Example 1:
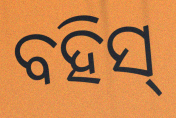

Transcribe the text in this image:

ବହିସ୍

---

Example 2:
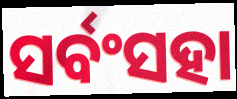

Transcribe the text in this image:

ସର୍ବଂସହା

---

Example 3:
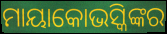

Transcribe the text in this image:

ମାୟାକୋଭସ୍କିଙ୍କର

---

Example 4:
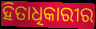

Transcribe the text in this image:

ହିତାଧିକାରୀର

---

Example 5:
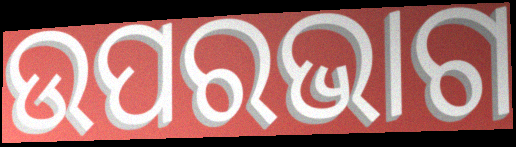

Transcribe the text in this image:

ଉପରଭାଗ